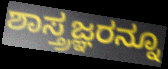
ಶಾಸ್ತ್ರಜ್ಞರನ್ನೂ